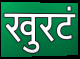
खुरटं